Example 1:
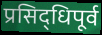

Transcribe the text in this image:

प्रसिद्धिपूर्व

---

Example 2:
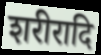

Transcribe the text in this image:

शरीरादि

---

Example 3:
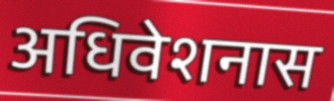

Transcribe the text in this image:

अधिवेशनास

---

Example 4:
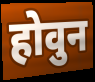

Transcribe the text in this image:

होवुन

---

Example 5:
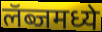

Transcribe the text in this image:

लॅब्जमध्ये